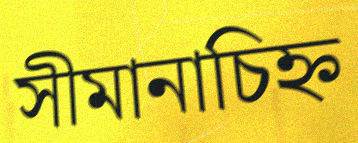
সীমানাচিহ্ন